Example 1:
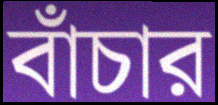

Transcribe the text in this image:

বাঁচার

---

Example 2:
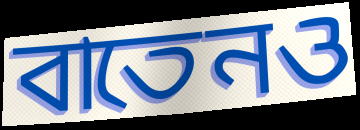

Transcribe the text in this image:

বাতেনও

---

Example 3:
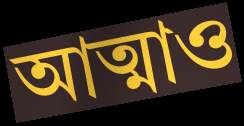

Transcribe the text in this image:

আত্মাও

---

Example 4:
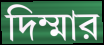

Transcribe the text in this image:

দিম্মার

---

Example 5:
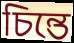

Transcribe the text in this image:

চিন্তে